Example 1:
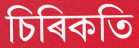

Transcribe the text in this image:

চিৰিকতি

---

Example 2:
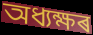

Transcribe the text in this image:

অধ্যক্ষৰ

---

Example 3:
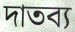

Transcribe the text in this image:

দাতব্য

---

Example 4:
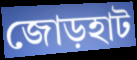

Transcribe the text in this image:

জোড়হাট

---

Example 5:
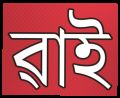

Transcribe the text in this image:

ৱাই